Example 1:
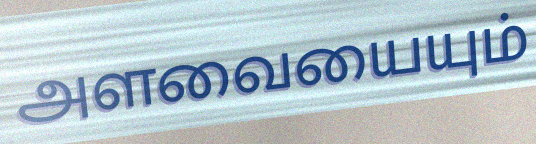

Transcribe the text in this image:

அளவையையும்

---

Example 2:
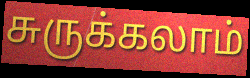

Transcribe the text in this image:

சுருக்கலாம்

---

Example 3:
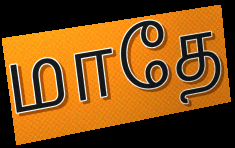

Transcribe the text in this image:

மாதே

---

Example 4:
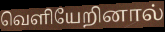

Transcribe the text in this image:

வெளியேறினால்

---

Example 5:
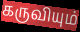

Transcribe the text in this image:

கருவியும்